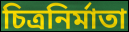
চিত্ৰনিৰ্মাতা